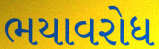
ભયાવરોધ